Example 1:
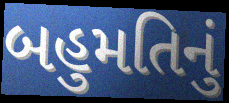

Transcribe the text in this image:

બહુમતિનું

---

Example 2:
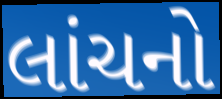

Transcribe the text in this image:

લાંચનો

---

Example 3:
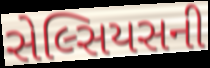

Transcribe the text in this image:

સેલ્સિયસની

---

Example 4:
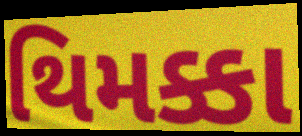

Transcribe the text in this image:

થિમક્કા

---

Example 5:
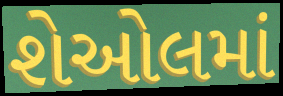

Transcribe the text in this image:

શેઓલમાં